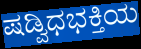
ಷಡ್ವಿಧಭಕ್ತಿಯ